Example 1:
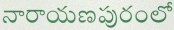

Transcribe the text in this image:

నారాయణపురంలో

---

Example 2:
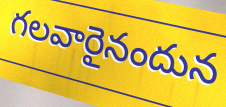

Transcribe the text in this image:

గలవారైనందున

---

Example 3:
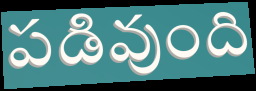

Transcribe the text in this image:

పడివుంది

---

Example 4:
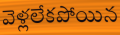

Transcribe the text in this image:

వెళ్లలేకపోయిన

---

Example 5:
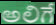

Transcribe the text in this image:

అలిగే